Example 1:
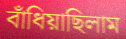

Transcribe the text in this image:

বাঁধিয়াছিলাম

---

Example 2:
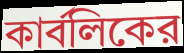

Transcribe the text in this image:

কার্বলিকের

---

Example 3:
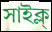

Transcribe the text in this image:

সাইক্ল্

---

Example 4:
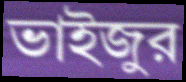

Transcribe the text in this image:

ভাইজুর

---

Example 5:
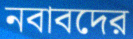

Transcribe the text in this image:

নবাবদের